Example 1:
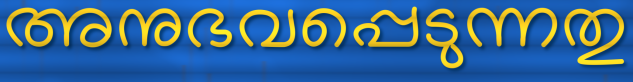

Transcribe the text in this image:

അനുഭവപ്പെടുന്നതു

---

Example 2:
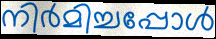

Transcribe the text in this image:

നിർമിച്ചപ്പോൾ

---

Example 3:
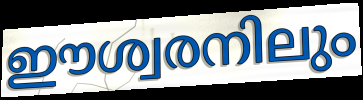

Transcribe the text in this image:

ഈശ്വരനിലും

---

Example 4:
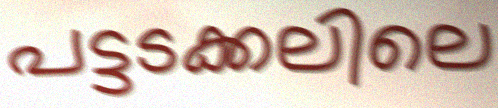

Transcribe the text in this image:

പട്ടടക്കലിലെ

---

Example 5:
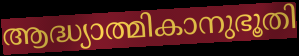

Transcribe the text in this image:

ആദ്ധ്യാത്മികാനുഭൂതി